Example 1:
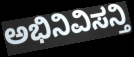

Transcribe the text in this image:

ಅಭಿನಿವಿಸನ್ತಿ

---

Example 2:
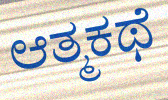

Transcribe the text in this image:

ಆತ್ಮಕಥೆ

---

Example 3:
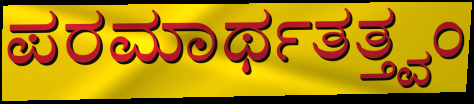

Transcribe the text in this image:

ಪರಮಾರ್ಥತತ್ತ್ವಂ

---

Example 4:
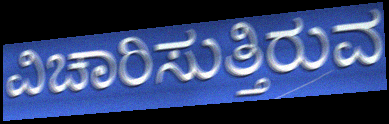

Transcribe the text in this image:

ವಿಚಾರಿಸುತ್ತಿರುವ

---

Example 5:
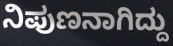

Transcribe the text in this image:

ನಿಪುಣನಾಗಿದ್ದು